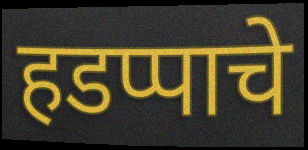
हडप्पाचे